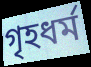
গৃহধর্ম